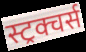
स्ट्रक्चर्स